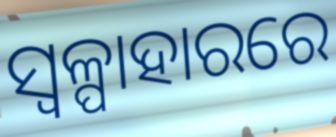
ସ୍ୱଳ୍ପାହାରରେ